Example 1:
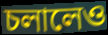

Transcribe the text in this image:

চলালেও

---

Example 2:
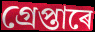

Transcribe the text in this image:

গ্ৰেপ্তাৰে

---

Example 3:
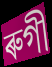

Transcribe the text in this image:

ৰুগী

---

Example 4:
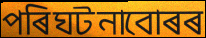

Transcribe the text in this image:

পৰিঘটনাবোৰৰ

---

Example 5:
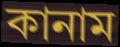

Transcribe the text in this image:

কানাম